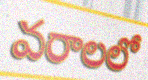
వరాలలో